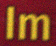
Im